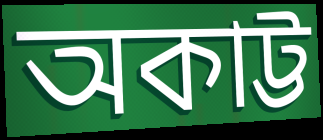
অকাট্ট